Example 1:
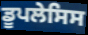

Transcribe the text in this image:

ਡੂਪਲੇਸਿਸ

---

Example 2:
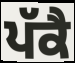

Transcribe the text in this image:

ਪੱਕੈ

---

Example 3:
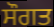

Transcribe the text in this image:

ਸੌਗਤ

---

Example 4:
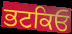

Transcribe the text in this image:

ਭਟਕਿਓ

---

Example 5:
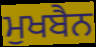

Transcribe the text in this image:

ਮੁਖਬੈਨ